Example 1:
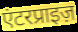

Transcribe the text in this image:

एंटरप्राइज़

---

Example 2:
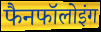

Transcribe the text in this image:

फैनफॉलोइंग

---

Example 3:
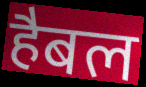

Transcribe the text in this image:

हैबल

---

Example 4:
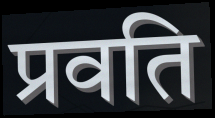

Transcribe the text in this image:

प्रवति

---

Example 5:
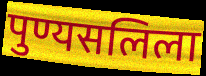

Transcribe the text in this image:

पुण्यसलिला